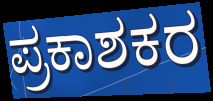
ಪ್ರಕಾಶಕರ